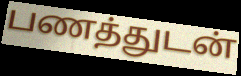
பணத்துடன்